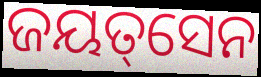
ଜୟତ୍‌ସେନ